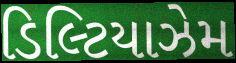
ડિલ્ટિયાઝેમ